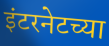
इंटरनेटच्या